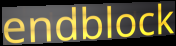
endblock